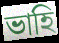
ভাহি